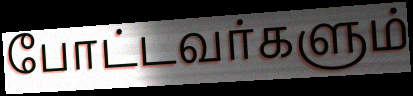
போட்டவர்களும்